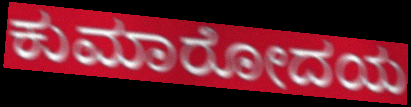
ಕುಮಾರೋದಯ